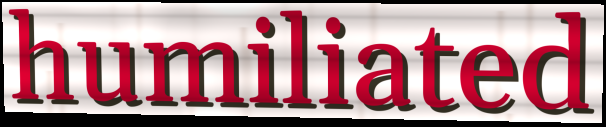
humiliated